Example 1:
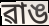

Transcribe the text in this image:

ৱাঙ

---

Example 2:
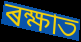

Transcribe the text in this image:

ৰক্ষাত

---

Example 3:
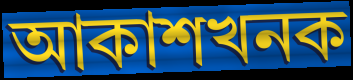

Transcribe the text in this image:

আকাশখনক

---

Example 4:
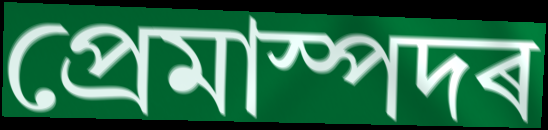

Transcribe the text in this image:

প্ৰেমাস্পদৰ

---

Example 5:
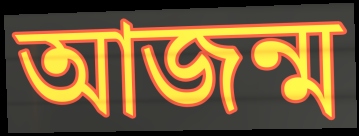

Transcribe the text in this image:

আজন্ম